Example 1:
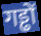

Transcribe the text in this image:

गड्ढों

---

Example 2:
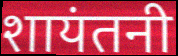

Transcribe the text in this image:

शायंतनी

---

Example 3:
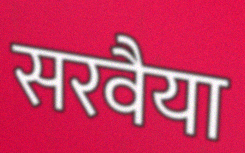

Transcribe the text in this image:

सरवैया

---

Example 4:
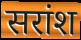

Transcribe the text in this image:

सरांश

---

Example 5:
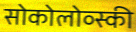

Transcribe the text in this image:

सोकोलोव्स्की